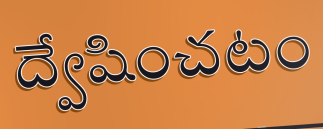
ద్వేషించటం